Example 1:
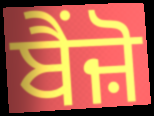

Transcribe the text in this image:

ਬੈਂਜ਼ੋ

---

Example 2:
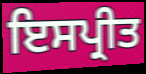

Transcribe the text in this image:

ਇਸਪ੍ਰੀਤ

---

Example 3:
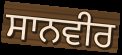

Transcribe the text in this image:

ਸਾਨਵੀਰ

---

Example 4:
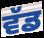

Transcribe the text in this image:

ਵੱਡ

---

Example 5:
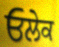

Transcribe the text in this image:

ਓਲੇਕ